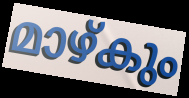
മാഴ്കും